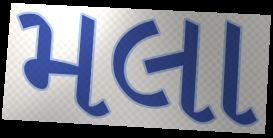
મલા